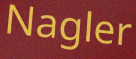
Nagler